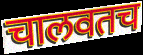
चालवतच